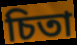
চিতা